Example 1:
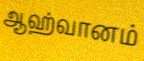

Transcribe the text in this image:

ஆஹ்வானம்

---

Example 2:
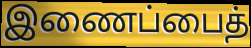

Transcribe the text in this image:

இணைப்பைத்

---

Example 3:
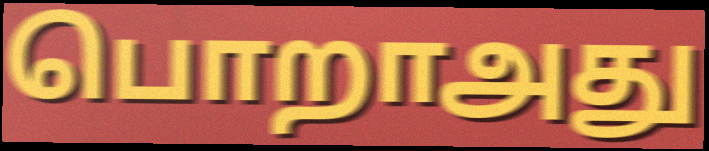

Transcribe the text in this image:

பொறாஅது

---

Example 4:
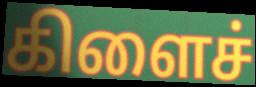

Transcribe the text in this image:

கிளைச்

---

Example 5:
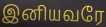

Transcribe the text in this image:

இனியவரே